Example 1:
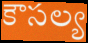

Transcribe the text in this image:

కౌసల్య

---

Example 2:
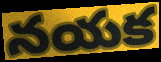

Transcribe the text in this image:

నయక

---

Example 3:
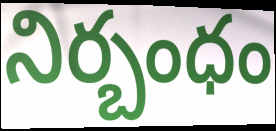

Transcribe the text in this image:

నిర్బంధం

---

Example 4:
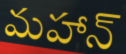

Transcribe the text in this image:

మహాన్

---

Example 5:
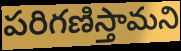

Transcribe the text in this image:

పరిగణిస్తామని